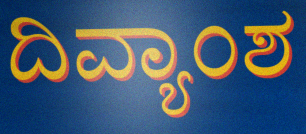
ದಿವ್ಯಾಂಶ